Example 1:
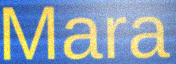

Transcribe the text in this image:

Mara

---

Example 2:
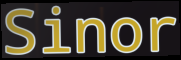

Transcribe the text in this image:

Sinor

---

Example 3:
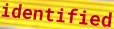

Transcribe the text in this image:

identified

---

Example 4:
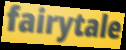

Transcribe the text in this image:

fairytale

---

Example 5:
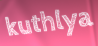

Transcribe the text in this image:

kuthlya